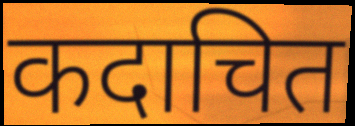
कदाचित